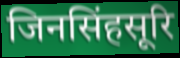
जिनसिंहसूरि